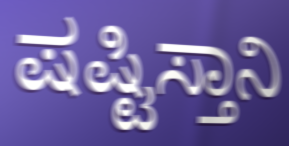
ಷಷ್ಟಿಸ್ತಾನಿ